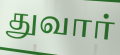
துவார்